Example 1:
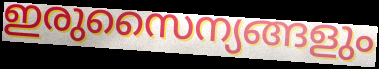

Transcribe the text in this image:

ഇരുസൈന്യങ്ങളും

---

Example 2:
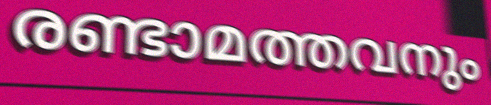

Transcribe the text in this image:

രണ്ടാമത്തവനും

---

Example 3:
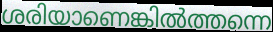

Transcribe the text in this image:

ശരിയാണെങ്കിൽത്തന്നെ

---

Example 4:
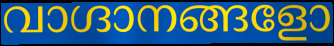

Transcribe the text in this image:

വാഗ്ദാനങ്ങളോ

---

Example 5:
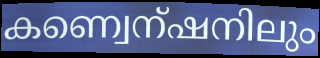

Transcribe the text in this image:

കണ്വെന്ഷനിലും